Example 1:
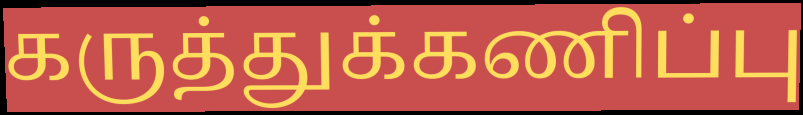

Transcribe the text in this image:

கருத்துக்கணிப்பு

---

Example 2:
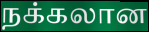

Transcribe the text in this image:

நக்கலான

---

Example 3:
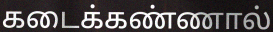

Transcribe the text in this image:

கடைக்கண்ணால்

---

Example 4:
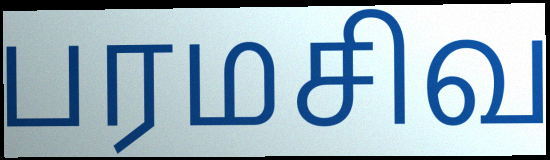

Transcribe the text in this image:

பரமசிவ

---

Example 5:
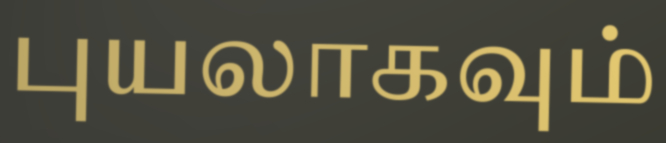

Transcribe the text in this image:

புயலாகவும்